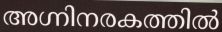
അഗ്നിനരകത്തിൽ